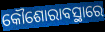
କୌଶୋରାବସ୍ଥାରେ